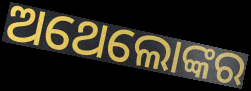
ଅଥେଲୋଙ୍କର